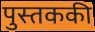
पुस्तककी